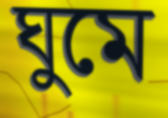
ঘুমে